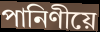
পানিণীয়ে